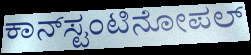
ಕಾನ್‍ಸ್ಟಂಟಿನೋಪಲ್